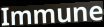
Immune